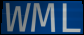
WML